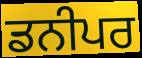
ਡਨੀਪਰ